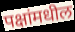
पक्षांमधील